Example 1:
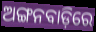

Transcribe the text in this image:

ଅଙ୍ଗନବାଡ଼ିରେ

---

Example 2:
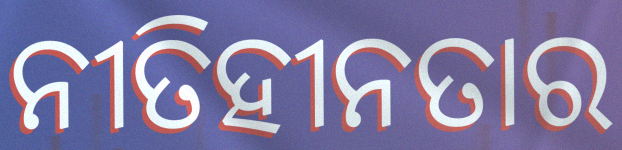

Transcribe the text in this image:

ନୀତିହୀନତାର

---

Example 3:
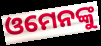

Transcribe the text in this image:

ଓମେନଙ୍କୁ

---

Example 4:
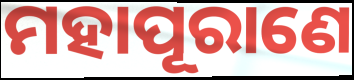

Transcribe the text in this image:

ମହାପୂରାଣେ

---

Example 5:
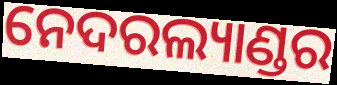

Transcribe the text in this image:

ନେଦରଲ୍ୟାଣ୍ଡର